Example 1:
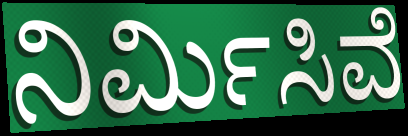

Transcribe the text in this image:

ನಿರ್ಮಿಸಿವೆ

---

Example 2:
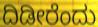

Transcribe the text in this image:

ದಿಡೀರೆಂದು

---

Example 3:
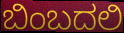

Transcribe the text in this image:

ಬಿಂಬದಲಿ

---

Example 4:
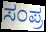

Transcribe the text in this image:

ಸಂಪ್ರ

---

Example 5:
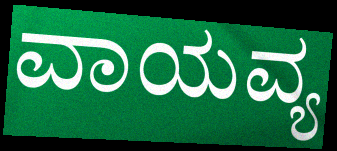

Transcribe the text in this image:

ವಾಯವ್ಯ